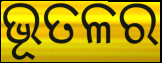
ଭୂତଳର